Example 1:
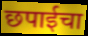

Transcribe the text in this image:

छपाईचा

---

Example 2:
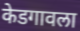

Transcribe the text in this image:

केडगावला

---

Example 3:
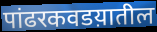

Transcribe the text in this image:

पांढरकवडय़ातील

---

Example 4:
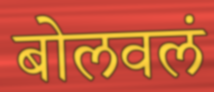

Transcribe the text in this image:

बोलवलं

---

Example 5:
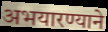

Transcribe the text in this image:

अभयारण्याने